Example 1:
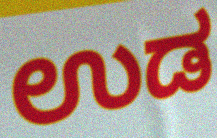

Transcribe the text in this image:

ಉಡ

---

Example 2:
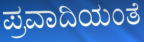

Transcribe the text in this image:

ಪ್ರವಾದಿಯಂತೆ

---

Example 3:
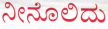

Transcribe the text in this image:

ನೀನೊಲಿದು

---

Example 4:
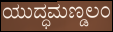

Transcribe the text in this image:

ಯುದ್ಧಮಣ್ಡಲಂ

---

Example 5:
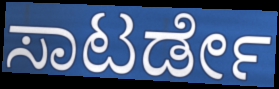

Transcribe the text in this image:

ಸಾಟರ್ಡೇ